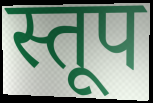
स्तूप